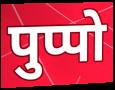
पुप्पो